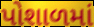
પોશાળમાં